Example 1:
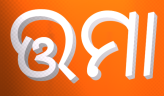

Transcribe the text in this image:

ତ୍ତମା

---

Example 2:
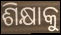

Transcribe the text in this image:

ଶିକ୍ଷାକୁ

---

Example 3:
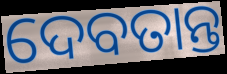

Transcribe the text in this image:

ଦେବତାନ୍ତ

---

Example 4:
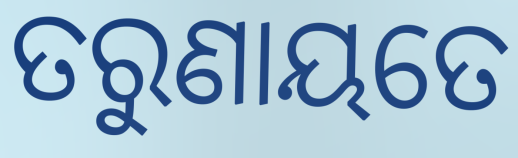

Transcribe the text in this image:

ତରୁଣାୟତେ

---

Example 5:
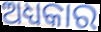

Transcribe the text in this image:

ଅଧ୍ଯକାର